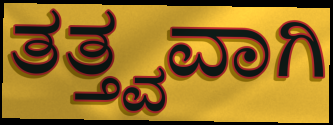
ತತ್ತ್ವವಾಗಿ